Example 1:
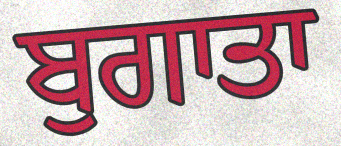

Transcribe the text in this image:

ਬੁਗਾਤਾ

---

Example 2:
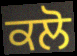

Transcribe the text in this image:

ਕਲੋ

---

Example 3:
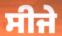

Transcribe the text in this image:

ਸੀਜੇ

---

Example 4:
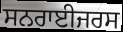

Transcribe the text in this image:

ਸਨਰਾਈਜਰਸ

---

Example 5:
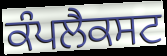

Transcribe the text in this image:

ਕੰਪਲੈਕਸਟ